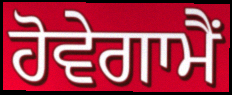
ਹੋਵੇਗਾਮੈਂ